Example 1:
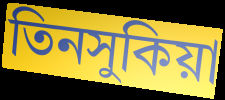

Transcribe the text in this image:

তিনসুকিয়া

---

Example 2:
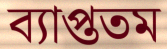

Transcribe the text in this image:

ব্যাপ্ততম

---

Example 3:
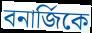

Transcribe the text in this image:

বনার্জিকে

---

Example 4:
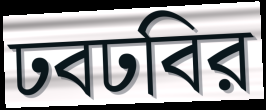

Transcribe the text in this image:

ঢবঢবির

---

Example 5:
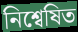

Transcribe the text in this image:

নিশ্বেষিত